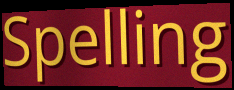
Spelling